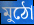
মুঠো